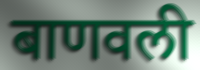
बाणवली